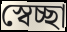
স্বেচ্ছা